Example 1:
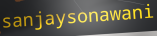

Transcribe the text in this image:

sanjaysonawani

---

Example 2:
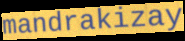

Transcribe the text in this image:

mandrakizay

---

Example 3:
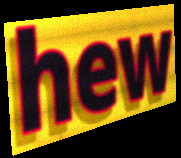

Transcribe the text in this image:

hew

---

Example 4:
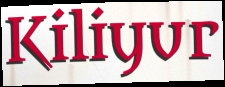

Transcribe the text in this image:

Kiliyur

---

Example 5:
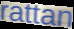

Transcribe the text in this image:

rattan